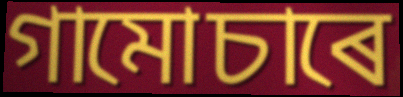
গামোচাৰে